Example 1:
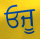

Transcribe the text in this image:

ਓਜੂ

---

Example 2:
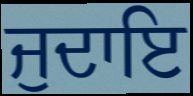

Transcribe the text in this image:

ਜੁਦਾਇ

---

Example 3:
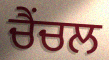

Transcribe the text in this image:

ਚੈਂਚਲ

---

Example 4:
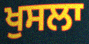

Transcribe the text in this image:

ਖੁਸਲਾ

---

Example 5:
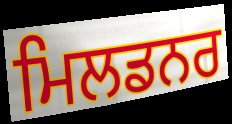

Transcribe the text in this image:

ਮਿਲਡਨਰ